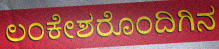
ಲಂಕೇಶರೊಂದಿಗಿನ